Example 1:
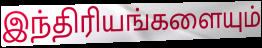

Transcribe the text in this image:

இந்திரியங்களையும்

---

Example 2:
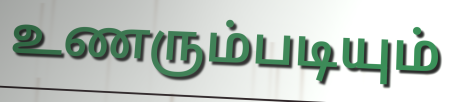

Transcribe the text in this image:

உணரும்படியும்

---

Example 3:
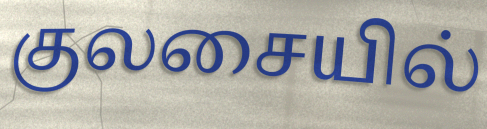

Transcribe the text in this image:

குலசையில்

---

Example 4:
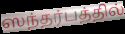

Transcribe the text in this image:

ஸந்தர்பத்தில்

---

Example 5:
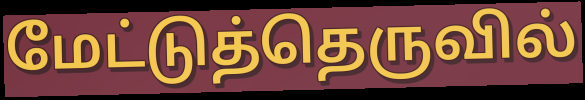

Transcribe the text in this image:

மேட்டுத்தெருவில்